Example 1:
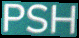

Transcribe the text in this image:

PSH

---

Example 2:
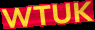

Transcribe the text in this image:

WTUK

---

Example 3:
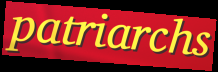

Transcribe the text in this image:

patriarchs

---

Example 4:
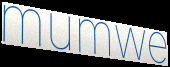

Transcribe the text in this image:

mumwe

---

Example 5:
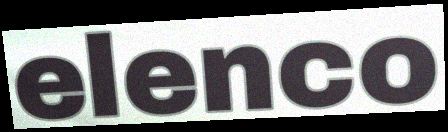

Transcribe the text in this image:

elenco